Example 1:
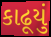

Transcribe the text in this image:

કાઢૂયું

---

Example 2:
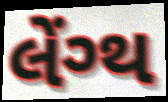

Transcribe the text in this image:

લેંગ્થ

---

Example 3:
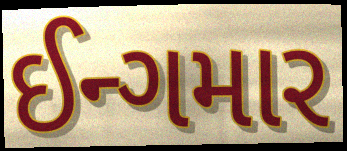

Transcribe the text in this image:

ઈન્ગમાર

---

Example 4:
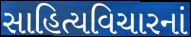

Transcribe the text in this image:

સાહિત્યવિચારનાં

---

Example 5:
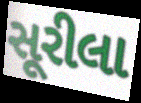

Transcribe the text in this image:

સૂરીલા